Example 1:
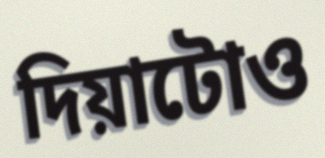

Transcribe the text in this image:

দিয়াটোও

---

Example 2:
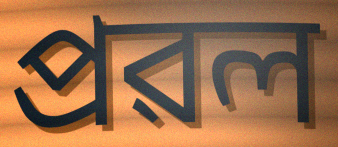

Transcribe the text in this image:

প্ৰৱল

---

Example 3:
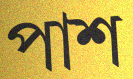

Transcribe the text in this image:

পাশ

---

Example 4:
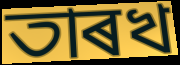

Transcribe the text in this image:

তাৰখ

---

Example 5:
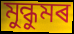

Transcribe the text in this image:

মুন্ধুমৰ